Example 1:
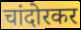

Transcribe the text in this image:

चांदोरकर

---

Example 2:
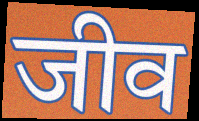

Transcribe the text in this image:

जीव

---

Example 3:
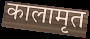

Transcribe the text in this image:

कालामृत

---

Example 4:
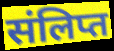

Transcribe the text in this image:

संलिप्त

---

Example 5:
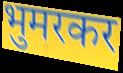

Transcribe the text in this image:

भुमरकर